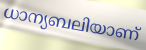
ധാന്യബലിയാണ്